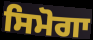
ਸਿਮੋਗਾ